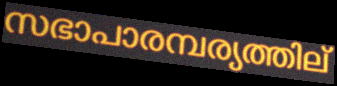
സഭാപാരമ്പര്യത്തില്